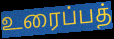
உரைப்பத்